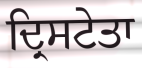
ਦ੍ਰਿਸਟੇਤਾ